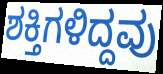
ಶಕ್ತಿಗಳಿದ್ದವು